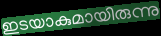
ഇടയാകുമായിരുന്നു